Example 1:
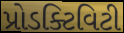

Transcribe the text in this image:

પ્રોડક્ટિવિટી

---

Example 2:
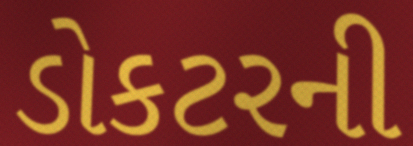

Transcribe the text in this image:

ડોકટરની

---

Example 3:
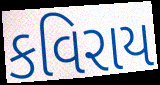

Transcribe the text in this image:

કવિરાય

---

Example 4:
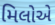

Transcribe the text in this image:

મિલોએ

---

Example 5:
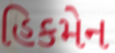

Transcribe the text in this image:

હિકમેન